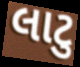
લાટુ